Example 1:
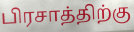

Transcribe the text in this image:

பிரசாத்திற்கு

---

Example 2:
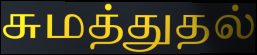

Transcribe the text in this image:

சுமத்துதல்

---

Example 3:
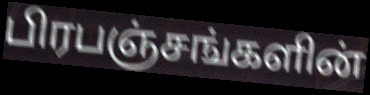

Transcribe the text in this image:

பிரபஞ்சங்களின்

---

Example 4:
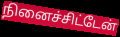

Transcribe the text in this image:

நினைச்சிட்டேன்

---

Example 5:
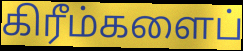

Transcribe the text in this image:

கிரீம்களைப்